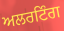
ਅਲਰਟਿੰਗ